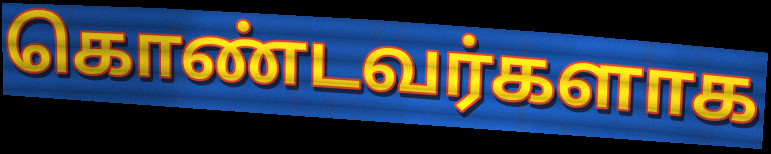
கொண்டவர்களாக